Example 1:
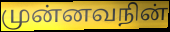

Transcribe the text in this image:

முன்னவநின்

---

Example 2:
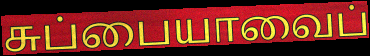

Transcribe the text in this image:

சுப்பையாவைப்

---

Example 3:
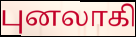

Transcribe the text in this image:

புனலாகி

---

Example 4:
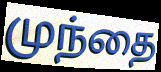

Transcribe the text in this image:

முந்தை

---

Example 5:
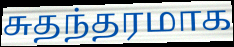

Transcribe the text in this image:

சுதந்தரமாக